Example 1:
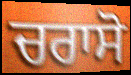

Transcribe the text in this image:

ਚਰਾਸੋ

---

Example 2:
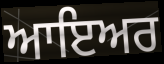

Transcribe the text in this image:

ਆਇਅਰ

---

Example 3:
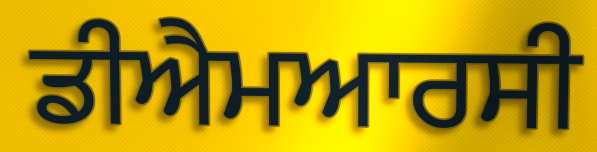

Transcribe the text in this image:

ਡੀਐਮਆਰਸੀ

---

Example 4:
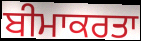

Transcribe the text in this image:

ਬੀਮਾਕਰਤਾ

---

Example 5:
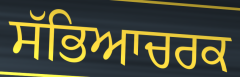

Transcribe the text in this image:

ਸੱਭਿਆਚਰਕ